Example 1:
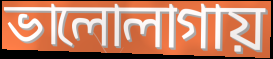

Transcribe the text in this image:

ভালোলাগায়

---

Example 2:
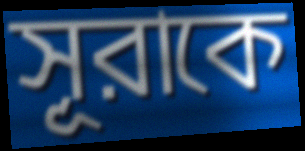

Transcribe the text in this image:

সূরাকে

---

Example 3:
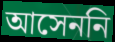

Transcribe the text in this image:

আসেননি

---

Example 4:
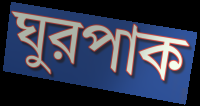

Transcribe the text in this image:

ঘুরপাক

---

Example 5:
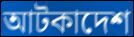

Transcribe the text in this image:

আটকাদেশ